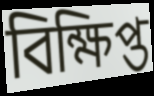
বিক্ষিপ্ত